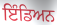
ਇੰਡਿਅਨ